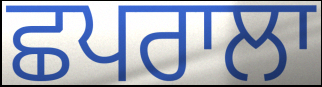
ਛਪਰਾਲਾ